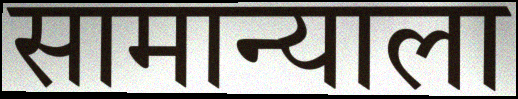
सामान्याला